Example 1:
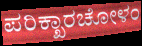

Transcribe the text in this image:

ಪರಿಕ್ಖಾರಚೋಳಂ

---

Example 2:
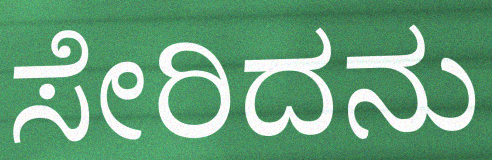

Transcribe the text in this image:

ಸೇರಿದನು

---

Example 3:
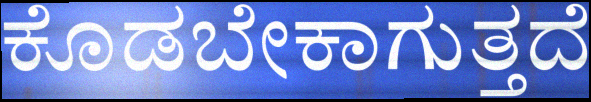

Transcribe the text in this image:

ಕೊಡಬೇಕಾಗುತ್ತದೆ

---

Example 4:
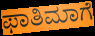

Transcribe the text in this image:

ಫಾತಿಮಾಗೆ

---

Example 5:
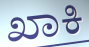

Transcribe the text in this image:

ಖಾಕಿ